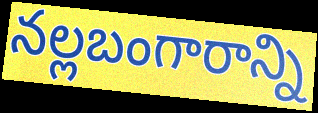
నల్లబంగారాన్ని